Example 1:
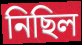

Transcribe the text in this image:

নিছিল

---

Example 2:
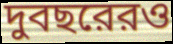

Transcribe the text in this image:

দুবছরেরও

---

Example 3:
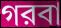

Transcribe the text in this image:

গরবা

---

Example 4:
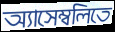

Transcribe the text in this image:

অ্যাসেম্বলিতে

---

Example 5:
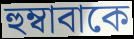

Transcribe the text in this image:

হুম্বাবাকে